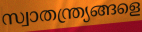
സ്വാതന്ത്ര്യങ്ങളെ